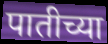
पातीच्या